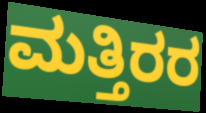
ಮತ್ತಿರರ